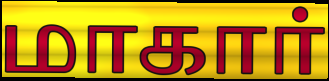
மாகார்